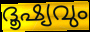
ദൂഷ്യവും